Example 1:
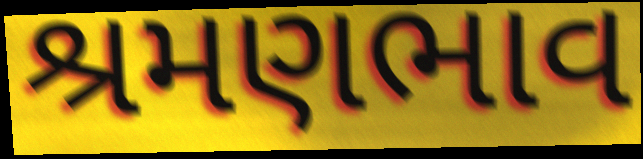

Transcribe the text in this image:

શ્રમણભાવ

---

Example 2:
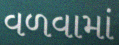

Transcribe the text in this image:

વળવામાં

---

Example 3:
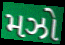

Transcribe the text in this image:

મઝો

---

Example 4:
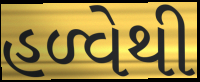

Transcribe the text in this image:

હળ્વેથી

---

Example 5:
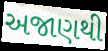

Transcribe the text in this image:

અજાણથી